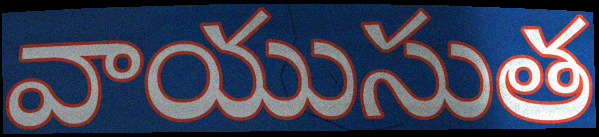
వాయుసుత